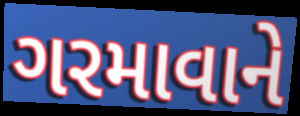
ગરમાવાને